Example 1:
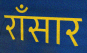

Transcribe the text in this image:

राँसार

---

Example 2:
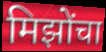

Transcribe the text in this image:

मिझोंचा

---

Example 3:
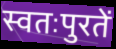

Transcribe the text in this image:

स्वतःपुरतें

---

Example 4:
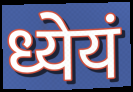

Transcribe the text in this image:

ध्येयं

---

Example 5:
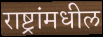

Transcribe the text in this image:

राष्ट्रांमधील